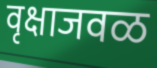
वृक्षाजवळ